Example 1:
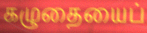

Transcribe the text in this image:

கழுதையைப்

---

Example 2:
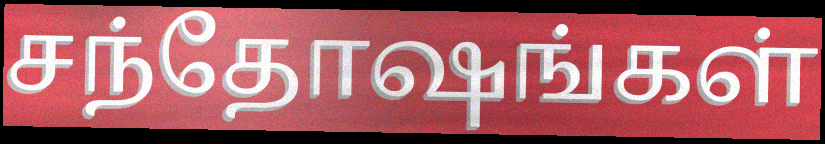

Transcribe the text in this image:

சந்தோஷங்கள்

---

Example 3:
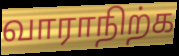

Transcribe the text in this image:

வாராநிற்க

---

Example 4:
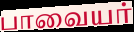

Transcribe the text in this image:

பாவையர்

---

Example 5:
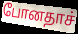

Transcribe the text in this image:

போனதாச்